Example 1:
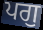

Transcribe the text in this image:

ਪਗੁ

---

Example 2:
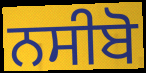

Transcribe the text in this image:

ਨਸੀਬੋ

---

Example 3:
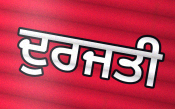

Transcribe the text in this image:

ਦੁਰਜਤੀ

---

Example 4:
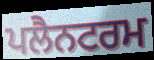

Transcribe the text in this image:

ਪਲੈਨਟਰਮ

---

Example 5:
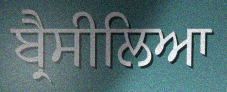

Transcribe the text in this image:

ਬ੍ਰੈਸੀਲਿਆ